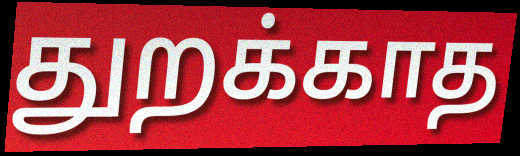
துறக்காத